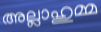
അല്ലാഹുമ്മ